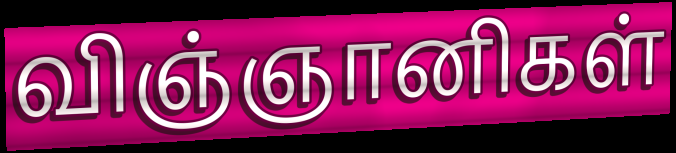
விஞ்ஞானிகள்